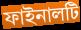
ফাইনালটি